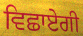
ਵਿਛਾਏਗੀ